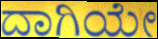
ದಾಗಿಯೇ